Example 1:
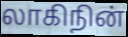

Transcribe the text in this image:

லாகிநின்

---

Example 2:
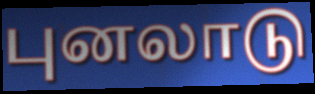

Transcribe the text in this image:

புனலாடு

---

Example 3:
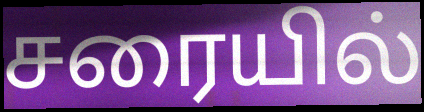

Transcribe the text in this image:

சரையில்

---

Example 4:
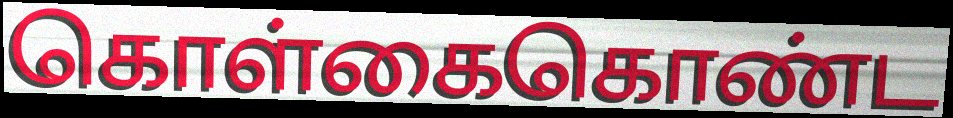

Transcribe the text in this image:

கொள்கைகொண்ட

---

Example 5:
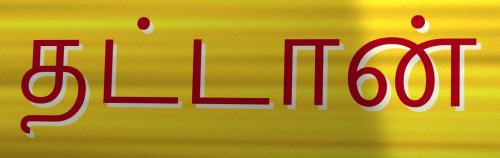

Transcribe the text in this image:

தட்டான்